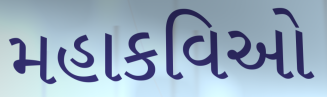
મહાકવિઓ